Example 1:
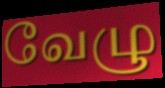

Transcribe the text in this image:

வேழு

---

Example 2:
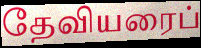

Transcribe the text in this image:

தேவியரைப்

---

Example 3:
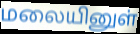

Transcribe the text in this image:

மலையினுள்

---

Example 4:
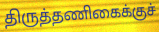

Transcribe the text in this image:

திருத்தணிகைக்குச்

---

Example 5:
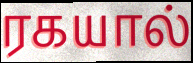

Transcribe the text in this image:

ரகயால்